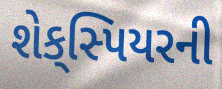
શેક્‌સ્પિયરની